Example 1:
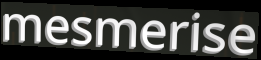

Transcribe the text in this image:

mesmerise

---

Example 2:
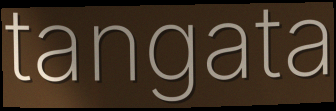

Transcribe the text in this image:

tangata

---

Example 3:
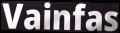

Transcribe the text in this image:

Vainfas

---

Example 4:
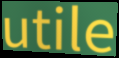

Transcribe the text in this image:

utile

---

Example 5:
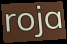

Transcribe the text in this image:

roja